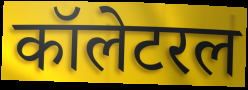
कॉलेटरल